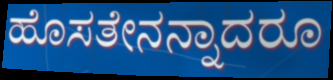
ಹೊಸತೇನನ್ನಾದರೂ